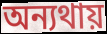
অন্যথায়